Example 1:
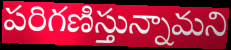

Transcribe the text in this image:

పరిగణిస్తున్నామని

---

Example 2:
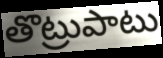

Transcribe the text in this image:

తొట్రుపాటు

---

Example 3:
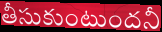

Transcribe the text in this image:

తీసుకుంటుందనీ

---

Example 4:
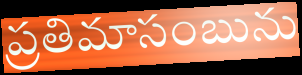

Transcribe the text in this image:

ప్రతిమాసంబును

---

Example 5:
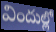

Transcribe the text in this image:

విందుల్లో